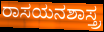
ರಾಸಯನಶಾಸ್ತ್ರ